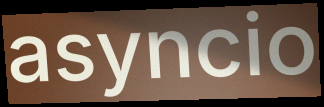
asyncio